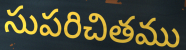
సుపరిచితము